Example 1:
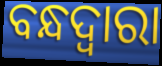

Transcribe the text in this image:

ବନ୍ଧଦ୍ବାରା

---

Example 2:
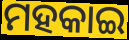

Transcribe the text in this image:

ମହକାଇ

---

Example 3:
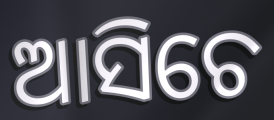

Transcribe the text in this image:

ଆସିଚେ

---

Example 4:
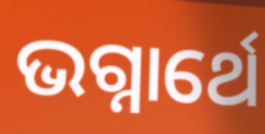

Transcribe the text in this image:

ଭଗ୍ନାର୍ଥେ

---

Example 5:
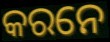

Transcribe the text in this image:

କରନେ